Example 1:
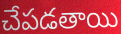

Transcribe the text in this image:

చేపడతాయి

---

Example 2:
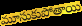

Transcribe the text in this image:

మూసుకుపోతాయి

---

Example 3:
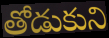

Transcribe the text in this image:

తోడుకుని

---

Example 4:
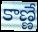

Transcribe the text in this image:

కాణ్ణే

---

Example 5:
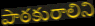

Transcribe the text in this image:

పాఠకురాలిని